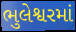
ભુલેશ્વરમાં